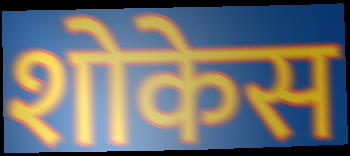
शोकेस